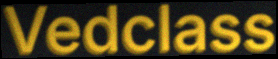
Vedclass